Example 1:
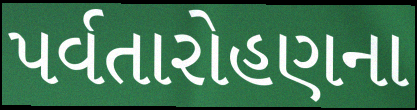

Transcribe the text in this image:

પર્વતારોહણના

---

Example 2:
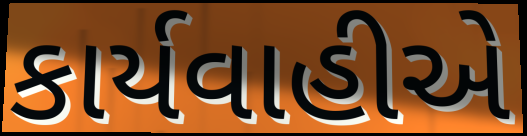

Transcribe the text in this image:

કાર્યવાહીએ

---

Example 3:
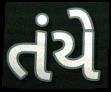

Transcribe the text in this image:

તંયે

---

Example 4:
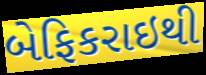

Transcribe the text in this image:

બેફિકરાઇથી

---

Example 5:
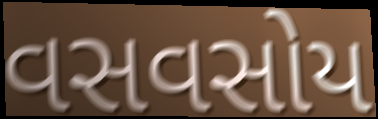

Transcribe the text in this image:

વસવસોય